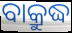
ବାକ୍ରୁଦ୍ଧ